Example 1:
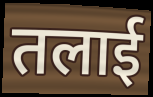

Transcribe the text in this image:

तलाई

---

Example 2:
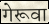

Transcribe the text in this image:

गेरूवा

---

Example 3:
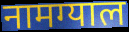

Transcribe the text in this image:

नामग्याल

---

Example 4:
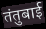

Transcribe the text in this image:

तंतुबाई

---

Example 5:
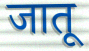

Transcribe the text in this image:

जातू